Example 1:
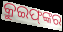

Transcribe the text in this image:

କ୍ରୁଇଫ୍‌ଙ୍କର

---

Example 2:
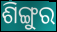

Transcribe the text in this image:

ଶିଙ୍ଗୁର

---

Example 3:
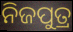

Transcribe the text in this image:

ନିଜପୁତ୍ର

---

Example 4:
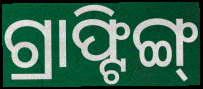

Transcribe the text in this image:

ଗ୍ରାଫ୍ଟିଙ୍ଗ୍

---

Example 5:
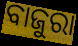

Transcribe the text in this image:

ବାଜୁରା